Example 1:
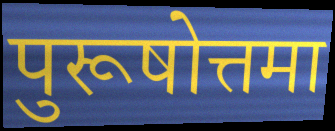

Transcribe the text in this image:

पुरूषोत्तमा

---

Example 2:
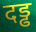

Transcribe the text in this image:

दड्ढ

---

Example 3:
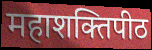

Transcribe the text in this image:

महाशक्तिपीठ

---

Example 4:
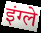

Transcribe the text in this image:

इंग्ले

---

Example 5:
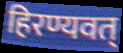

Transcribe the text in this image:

हिरण्यवत्